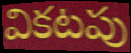
వికటపు